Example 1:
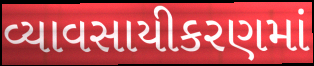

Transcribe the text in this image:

વ્યાવસાયીકરણમાં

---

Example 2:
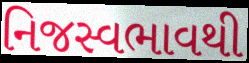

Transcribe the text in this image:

નિજસ્વભાવથી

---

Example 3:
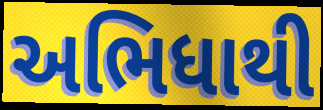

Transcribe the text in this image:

અભિધાથી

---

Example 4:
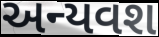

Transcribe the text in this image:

અન્યવશ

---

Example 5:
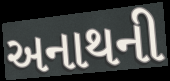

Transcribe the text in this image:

અનાથની